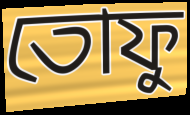
তোফু